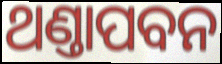
ଥଣ୍ତାପବନ